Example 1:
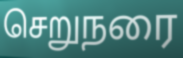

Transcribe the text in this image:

செறுநரை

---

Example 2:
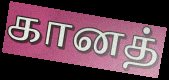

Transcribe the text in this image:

கானத்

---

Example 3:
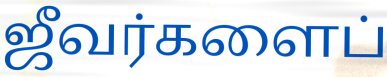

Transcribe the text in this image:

ஜீவர்களைப்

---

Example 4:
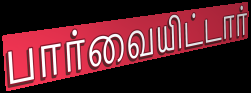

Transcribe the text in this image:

பார்வையிட்டார்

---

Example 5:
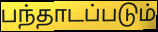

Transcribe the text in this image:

பந்தாடப்படும்